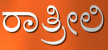
ರಾತ್ರೀಲಿ